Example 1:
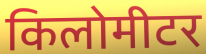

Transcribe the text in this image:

किलोमीटर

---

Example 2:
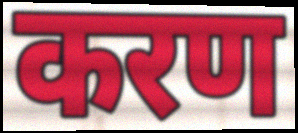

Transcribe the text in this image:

करण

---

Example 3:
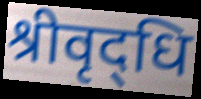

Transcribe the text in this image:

श्रीवृद्धि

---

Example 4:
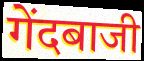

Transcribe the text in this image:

गेंदबाजी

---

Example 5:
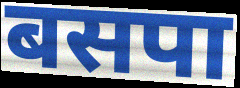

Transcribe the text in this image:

बसपा